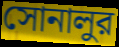
সোনালুর